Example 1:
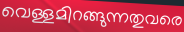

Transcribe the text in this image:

വെള്ളമിറങ്ങുന്നതുവരെ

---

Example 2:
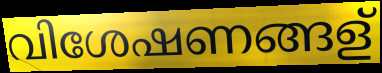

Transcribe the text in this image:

വിശേഷണങ്ങള്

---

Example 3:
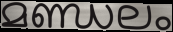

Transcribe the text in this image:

മണ്ഡലം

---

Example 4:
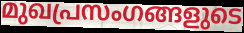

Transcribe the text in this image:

മുഖപ്രസംഗങ്ങളുടെ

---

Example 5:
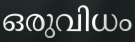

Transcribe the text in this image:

ഒരുവിധം